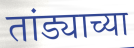
तांड्याच्या